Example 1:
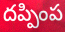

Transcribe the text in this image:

దప్పింప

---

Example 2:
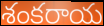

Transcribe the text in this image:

శంకరాయ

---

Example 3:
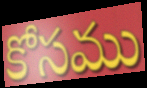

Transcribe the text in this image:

కోసము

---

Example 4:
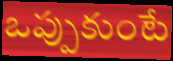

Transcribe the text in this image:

ఒప్పుకుంటే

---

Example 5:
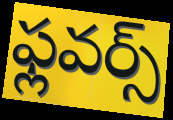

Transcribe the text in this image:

ఫ్లవర్స్